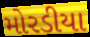
મોરડીયા